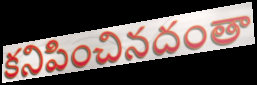
కనిపించినదంతా